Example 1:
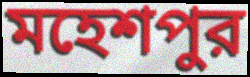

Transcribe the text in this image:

মহেশপুর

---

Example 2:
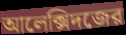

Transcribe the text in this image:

আলেক্সিদজের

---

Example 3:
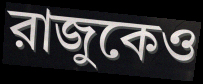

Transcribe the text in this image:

রাজুকেও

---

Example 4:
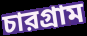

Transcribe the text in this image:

চারগ্রাম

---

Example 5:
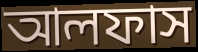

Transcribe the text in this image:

আলফাস